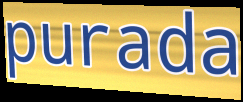
purada